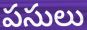
పసులు